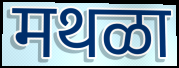
मथळा